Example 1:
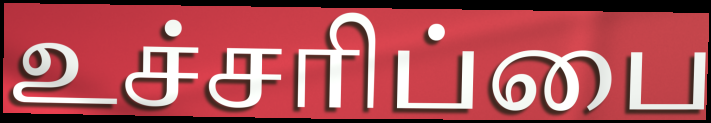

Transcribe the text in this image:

உச்சரிப்பை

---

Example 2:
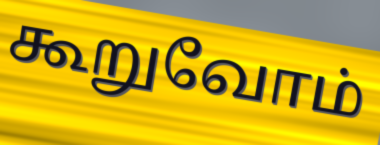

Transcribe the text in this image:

கூறுவோம்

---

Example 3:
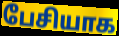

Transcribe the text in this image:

பேசியாக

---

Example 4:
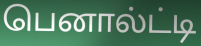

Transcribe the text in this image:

பெனால்ட்டி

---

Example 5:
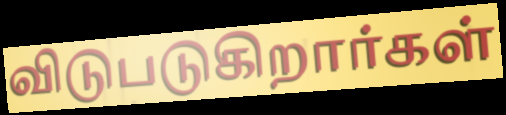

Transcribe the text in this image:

விடுபடுகிறார்கள்